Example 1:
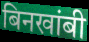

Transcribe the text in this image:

बिनखांबी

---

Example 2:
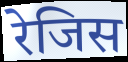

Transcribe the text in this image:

रेजिस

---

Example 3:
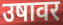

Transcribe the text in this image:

उषावर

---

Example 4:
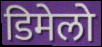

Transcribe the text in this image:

डिमेलो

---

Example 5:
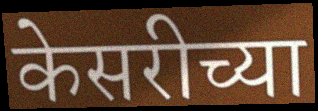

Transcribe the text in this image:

केसरीच्या